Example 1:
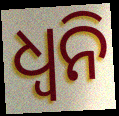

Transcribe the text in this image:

ଧ୍ୱନି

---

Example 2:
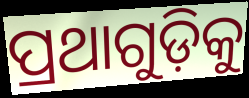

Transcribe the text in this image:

ପ୍ରଥାଗୁଡ଼ିକୁ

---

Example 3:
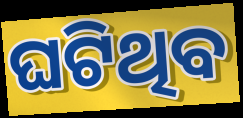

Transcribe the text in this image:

ଘଟିଥିବ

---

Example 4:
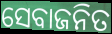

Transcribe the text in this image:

ସେବାଜନିତ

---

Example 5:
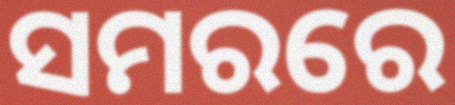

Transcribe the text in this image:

ସମରରେ